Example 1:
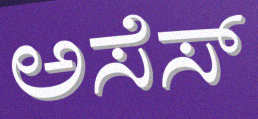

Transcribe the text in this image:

ಅಸೆಸ್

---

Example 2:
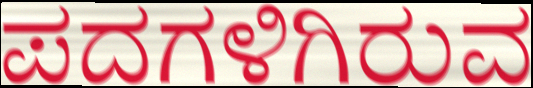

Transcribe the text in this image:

ಪದಗಳಿಗಿರುವ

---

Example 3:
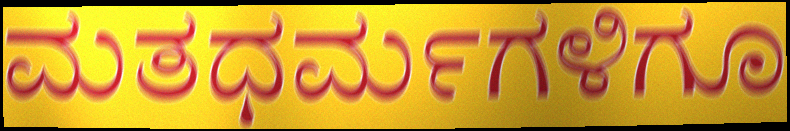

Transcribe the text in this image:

ಮತಧರ್ಮಗಳಿಗೂ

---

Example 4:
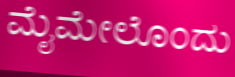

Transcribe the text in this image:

ಮೈಮೇಲೊಂದು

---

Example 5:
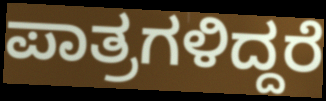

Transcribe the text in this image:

ಪಾತ್ರಗಳಿದ್ದರೆ